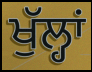
ਖੁੱਲ੍ਹਾਂ